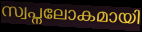
സ്വപ്നലോകമായി